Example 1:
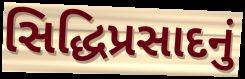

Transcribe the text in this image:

સિદ્ધિપ્રસાદનું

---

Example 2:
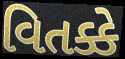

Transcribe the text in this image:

વિતક્કે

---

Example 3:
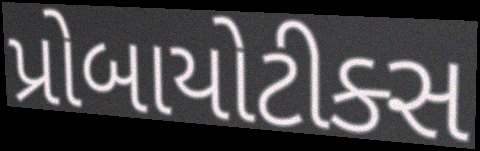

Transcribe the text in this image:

પ્રોબાયોટીક્સ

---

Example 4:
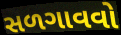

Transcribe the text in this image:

સળગાવવો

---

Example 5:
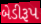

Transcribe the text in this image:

બેડીરૂપ